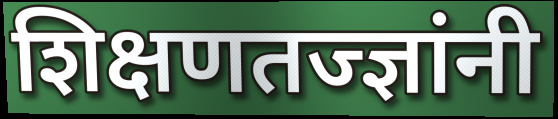
शिक्षणतज्ज्ञांनी